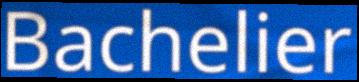
Bachelier